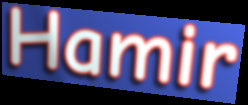
Hamir